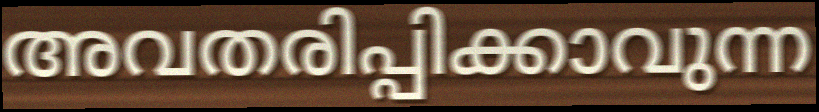
അവതരിപ്പിക്കാവുന്ന